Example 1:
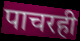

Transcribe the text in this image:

पाचरही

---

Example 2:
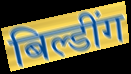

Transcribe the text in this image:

बिल्डींग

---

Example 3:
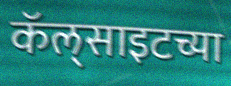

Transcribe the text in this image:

कॅल्साइटच्या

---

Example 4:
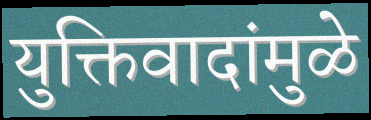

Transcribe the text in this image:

युक्तिवादांमुळे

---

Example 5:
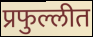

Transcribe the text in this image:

प्रफुल्लीत